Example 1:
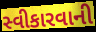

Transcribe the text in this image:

સ્વીકારવાની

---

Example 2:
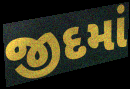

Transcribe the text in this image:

જીદમાં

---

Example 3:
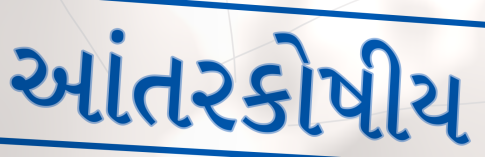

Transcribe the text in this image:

આંતરકોષીય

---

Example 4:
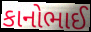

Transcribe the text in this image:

કાનોભાઈ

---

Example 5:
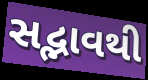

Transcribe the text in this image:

સદ્ભાવથી